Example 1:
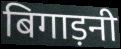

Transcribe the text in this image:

बिगाड़नी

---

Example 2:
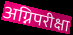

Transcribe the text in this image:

अग्निपरीक्षा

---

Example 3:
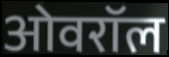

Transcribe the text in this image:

ओवरॉल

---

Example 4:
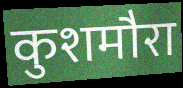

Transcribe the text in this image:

कुशमौरा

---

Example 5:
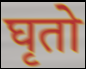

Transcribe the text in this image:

घृतो